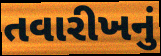
તવારીખનું